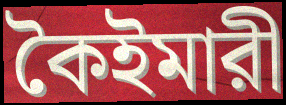
কৈইমারী